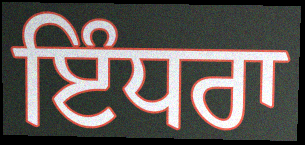
ਇੰਧਰਾ